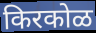
किरकोळ